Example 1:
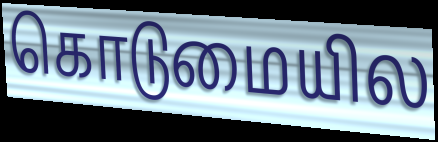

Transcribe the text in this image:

கொடுமையில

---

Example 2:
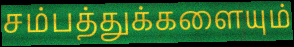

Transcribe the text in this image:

சம்பத்துக்களையும்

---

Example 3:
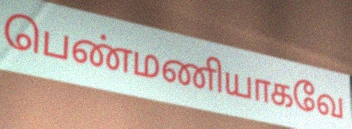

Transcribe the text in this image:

பெண்மணியாகவே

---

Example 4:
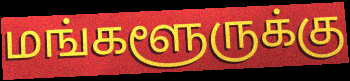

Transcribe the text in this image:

மங்களூருக்கு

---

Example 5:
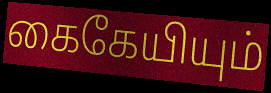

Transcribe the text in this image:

கைகேயியும்